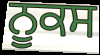
ਨੂਕਸ